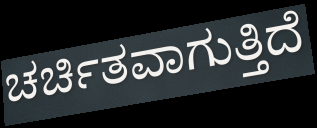
ಚರ್ಚಿತವಾಗುತ್ತಿದೆ